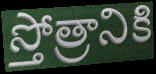
స్తోత్రానికి